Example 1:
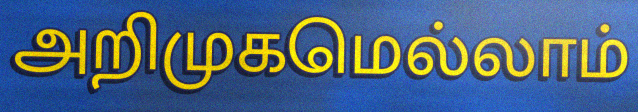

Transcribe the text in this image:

அறிமுகமெல்லாம்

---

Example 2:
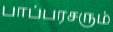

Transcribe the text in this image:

பாப்பரசரும்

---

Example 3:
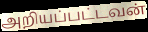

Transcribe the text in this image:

அறியப்பட்டவன்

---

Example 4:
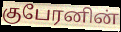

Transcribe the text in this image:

குபேரனின்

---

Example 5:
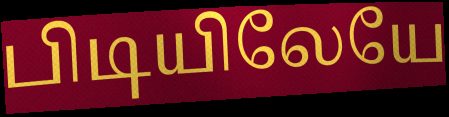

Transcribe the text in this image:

பிடியிலேயே